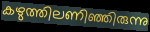
കഴുത്തിലണിഞ്ഞിരുന്നു